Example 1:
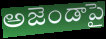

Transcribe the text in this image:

అజెండాపై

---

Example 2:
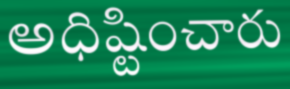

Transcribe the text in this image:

అధిష్టించారు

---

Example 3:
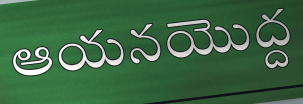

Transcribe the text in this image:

ఆయనయొద్ద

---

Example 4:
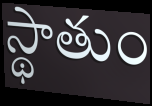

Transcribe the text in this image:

స్థాతుం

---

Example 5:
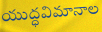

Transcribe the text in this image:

యుద్ధవిమానాల